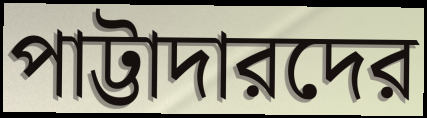
পাট্টাদারদের